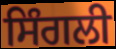
ਸਿੰਗਲੀ